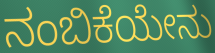
ನಂಬಿಕೆಯೇನು